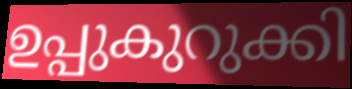
ഉപ്പുകുറുക്കി